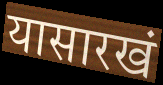
यासारखं